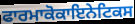
ਫਾਰਮਾਕੋਕਾਇਨੇਟਿਕਸ